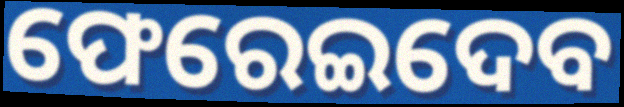
ଫେରେଇଦେବ